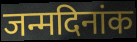
जन्मदिनांक